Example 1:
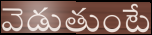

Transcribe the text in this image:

వెడుతుంటే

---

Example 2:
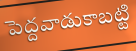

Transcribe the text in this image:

పెద్దవాడుకాబట్టి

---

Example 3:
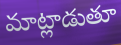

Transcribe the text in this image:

మాట్లాడుతూ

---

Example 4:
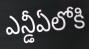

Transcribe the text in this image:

ఎన్డీఏలోకి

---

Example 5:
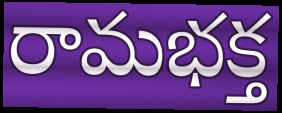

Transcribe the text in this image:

రామభక్త